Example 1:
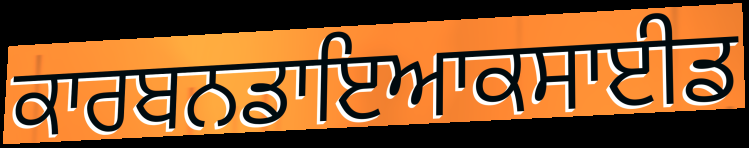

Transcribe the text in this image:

ਕਾਰਬਨਡਾਇਆਕਸਾਈਡ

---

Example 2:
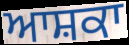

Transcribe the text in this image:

ਆਸ਼ਕਾ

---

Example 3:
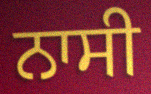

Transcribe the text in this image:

ਨਾਸੀ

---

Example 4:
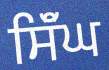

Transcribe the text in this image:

ਸਿੱੰਘ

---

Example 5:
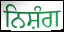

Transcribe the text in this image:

ਨਿਸ਼ੰਗ